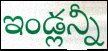
ఇండ్లన్నీ